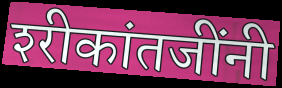
श्रीकांतजींनी